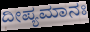
ದೀಪ್ಯಮಾನಃ